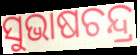
ସୁଭାଷଚନ୍ଦ୍ର